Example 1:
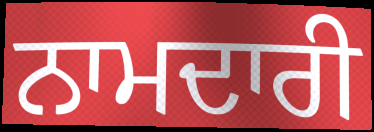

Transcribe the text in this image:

ਨਾਮਦਾਰੀ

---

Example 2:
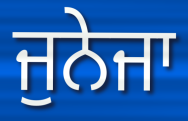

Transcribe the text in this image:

ਜੁਨੇਜਾ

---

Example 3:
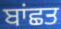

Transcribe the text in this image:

ਬਾਂਛਤ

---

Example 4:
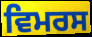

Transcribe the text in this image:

ਵਿਮਰਸ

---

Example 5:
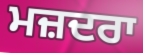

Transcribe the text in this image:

ਮਜ਼ਦਰਾ